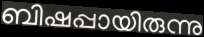
ബിഷപ്പായിരുന്നു